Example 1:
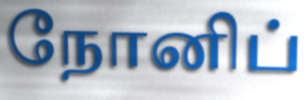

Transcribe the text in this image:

நோனிப்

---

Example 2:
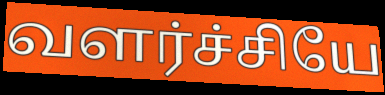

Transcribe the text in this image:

வளர்ச்சியே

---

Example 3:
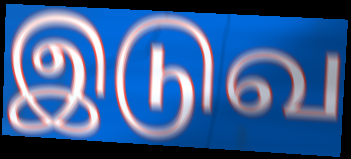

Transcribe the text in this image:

இடுவ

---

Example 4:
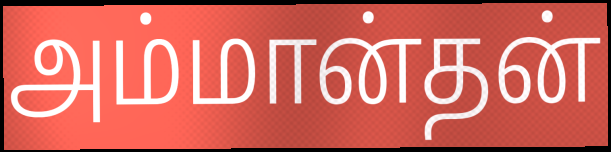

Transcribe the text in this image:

அம்மான்தன்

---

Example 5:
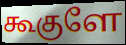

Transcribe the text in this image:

கூகுளே